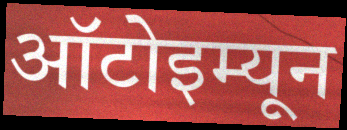
ऑटोइम्‍यून